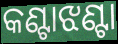
କଣ୍ଟାଝଣ୍ଟା